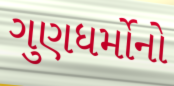
ગુણધર્મોનો